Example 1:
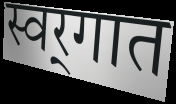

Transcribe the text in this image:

स्वर्गात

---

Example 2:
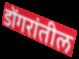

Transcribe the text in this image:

डोंगरांतील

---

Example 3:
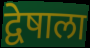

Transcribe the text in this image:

द्वेषाला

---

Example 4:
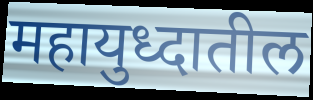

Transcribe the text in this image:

महायुध्दातील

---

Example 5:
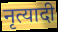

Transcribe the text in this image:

नृत्यादी